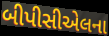
બીપીસીએલના